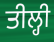
ਤੀਲ੍ਹੀ